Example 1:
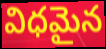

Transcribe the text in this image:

విధమైన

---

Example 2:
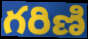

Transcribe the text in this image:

గరిణి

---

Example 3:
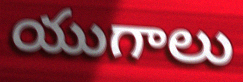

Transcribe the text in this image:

యుగాలు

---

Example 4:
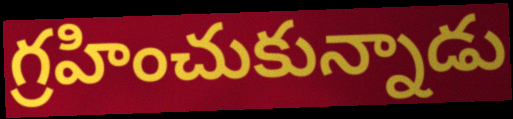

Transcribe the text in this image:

గ్రహించుకున్నాడు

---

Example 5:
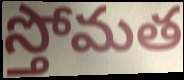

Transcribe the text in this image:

స్తోమత